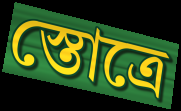
স্তোত্রে